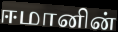
ஈமானின்